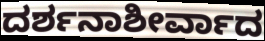
ದರ್ಶನಾಶೀರ್ವಾದ